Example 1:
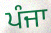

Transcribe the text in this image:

ਪੰਜਾ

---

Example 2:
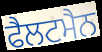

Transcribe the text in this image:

ਫੈਲਟਮੈਨ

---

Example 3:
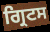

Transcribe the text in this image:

ਗ੍ਰਿਟਸ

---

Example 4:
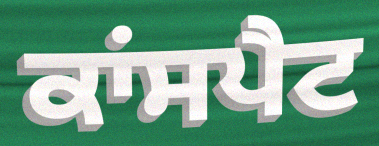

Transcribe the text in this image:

ਕਾਂਸਪੈਟ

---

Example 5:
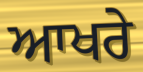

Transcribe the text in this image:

ਆਖਰੇ